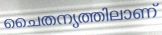
ചൈതന്യത്തിലാണ്